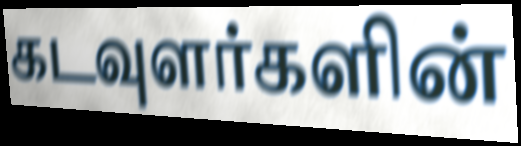
கடவுளர்களின்